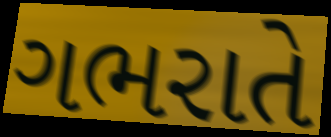
ગભરાતે